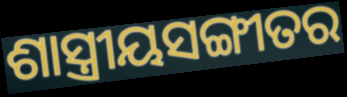
ଶାସ୍ତ୍ରୀୟସଙ୍ଗୀତର